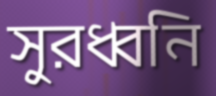
সুরধ্বনি